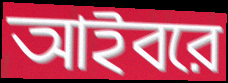
আইবরে